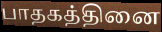
பாதகத்தினை